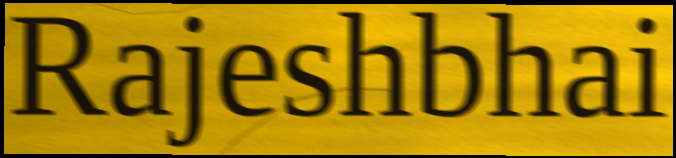
Rajeshbhai